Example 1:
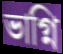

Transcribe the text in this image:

ভাগ্নি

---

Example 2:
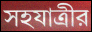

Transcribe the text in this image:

সহযাত্রীর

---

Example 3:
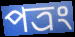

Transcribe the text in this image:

পত্রং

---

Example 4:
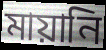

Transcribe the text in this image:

মায়ানি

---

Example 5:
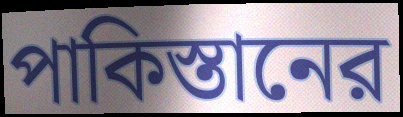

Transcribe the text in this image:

পাকিস্তানের